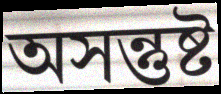
অসন্তুষ্ট